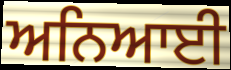
ਅਨਿਆਈ